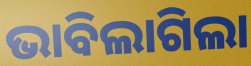
ଭାବିଲାଗିଲା